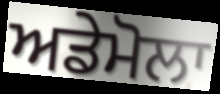
ਅਡੇਮੋਲਾ